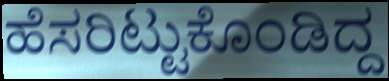
ಹೆಸರಿಟ್ಟುಕೊಂಡಿದ್ದ